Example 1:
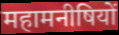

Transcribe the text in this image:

महामनीषियों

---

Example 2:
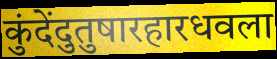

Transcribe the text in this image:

कुंदेंदुतुषारहारधवला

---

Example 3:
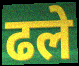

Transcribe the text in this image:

ढले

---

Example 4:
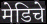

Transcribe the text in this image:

मेडिचे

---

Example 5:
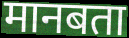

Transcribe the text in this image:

मानबता